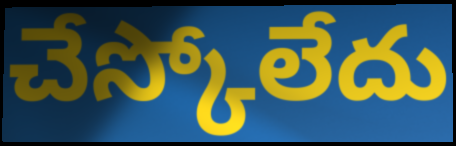
చేస్కోలేదు